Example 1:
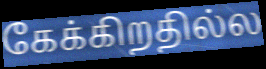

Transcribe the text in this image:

கேக்கிறதில்ல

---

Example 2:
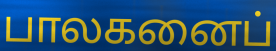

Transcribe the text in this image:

பாலகனைப்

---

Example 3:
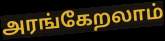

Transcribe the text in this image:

அரங்கேறலாம்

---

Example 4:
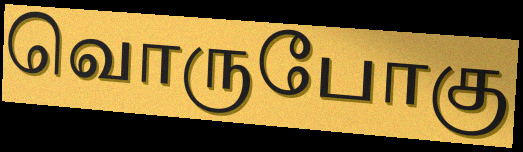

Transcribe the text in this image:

வொருபோகு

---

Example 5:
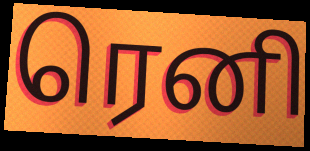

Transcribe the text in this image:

ரெனி